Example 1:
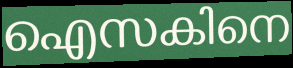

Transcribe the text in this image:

ഐസകിനെ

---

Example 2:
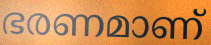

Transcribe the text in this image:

ഭരണമാണ്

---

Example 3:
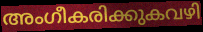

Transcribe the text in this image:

അംഗീകരിക്കുകവഴി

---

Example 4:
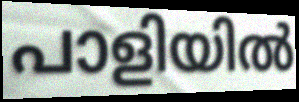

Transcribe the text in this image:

പാളിയിൽ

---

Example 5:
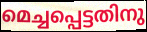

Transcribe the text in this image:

മെച്ചപ്പെട്ടതിനു